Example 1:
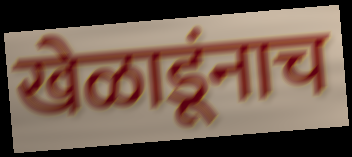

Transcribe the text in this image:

खेळाडूंनाच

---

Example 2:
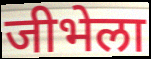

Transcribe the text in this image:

जीभेला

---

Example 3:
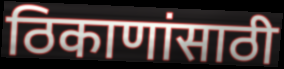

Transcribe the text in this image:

ठिकाणांसाठी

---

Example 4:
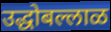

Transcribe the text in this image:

उद्धोबल्लाळ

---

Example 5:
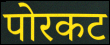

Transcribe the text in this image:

पोरकट